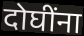
दोघींना